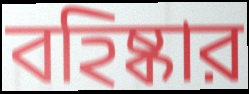
বহিষ্কার